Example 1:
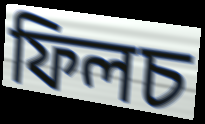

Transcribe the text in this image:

ফিলচ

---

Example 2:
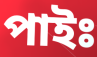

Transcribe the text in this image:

পাইঃ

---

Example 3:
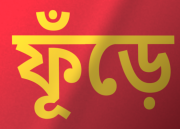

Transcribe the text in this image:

ফূঁড়ে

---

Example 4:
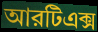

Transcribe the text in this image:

আরটিএক্স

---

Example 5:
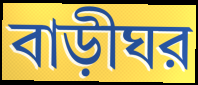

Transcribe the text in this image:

বাড়ীঘর